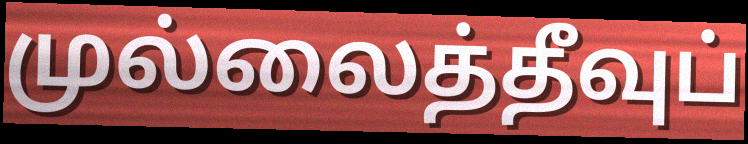
முல்லைத்தீவுப்